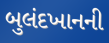
બુલંદખાનની